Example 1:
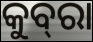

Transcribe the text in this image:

କୁବ୍‍ରା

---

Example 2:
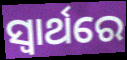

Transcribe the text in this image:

ସ୍ବାର୍ଥରେ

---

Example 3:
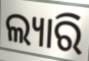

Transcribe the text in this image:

ଲ୍ୟାରି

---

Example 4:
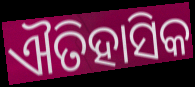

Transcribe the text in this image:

ଐତିହାସିକ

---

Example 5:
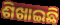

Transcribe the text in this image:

ଶିଖାଇଛି